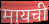
मायची